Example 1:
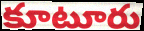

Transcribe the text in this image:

కూటూరు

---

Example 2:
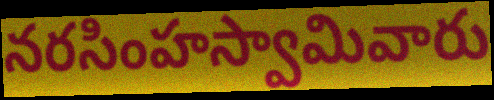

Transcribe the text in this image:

నరసింహస్వామివారు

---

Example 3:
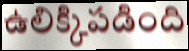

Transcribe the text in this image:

ఉలిక్కిపడింది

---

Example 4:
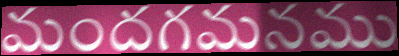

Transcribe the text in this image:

మందగమనము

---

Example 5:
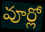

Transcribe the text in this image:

వూర్లో